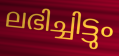
ലഭിച്ചിട്ടും